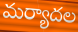
మర్యాదల